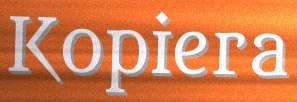
Kopiera